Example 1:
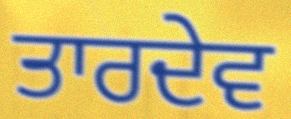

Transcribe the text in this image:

ਤਾਰਦੇਵ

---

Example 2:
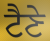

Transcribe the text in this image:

ਟੈਣੇ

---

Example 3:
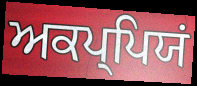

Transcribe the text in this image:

ਅਕਪ੍ਪਿਯਂ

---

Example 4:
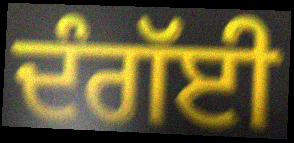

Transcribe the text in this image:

ਦੰਗੱਈ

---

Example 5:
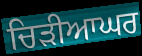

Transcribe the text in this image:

ਚਿੜੀਆਘਰ